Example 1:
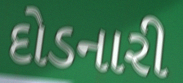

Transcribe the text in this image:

દોડનારી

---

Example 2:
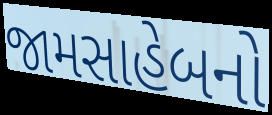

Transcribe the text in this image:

જામસાહેબનો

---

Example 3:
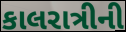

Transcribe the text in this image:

કાલરાત્રીની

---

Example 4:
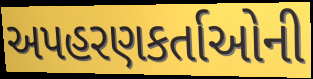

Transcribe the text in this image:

અપહરણકર્તાઓની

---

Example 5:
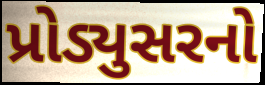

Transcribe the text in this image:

પ્રોડ્યુસરનો